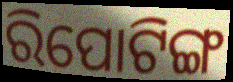
ରିପୋଟିଙ୍ଗ